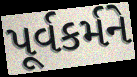
પૂર્વકર્મને